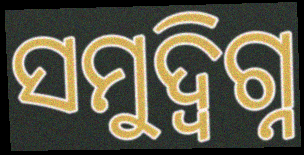
ସମୁଦ୍ବିଗ୍ନ